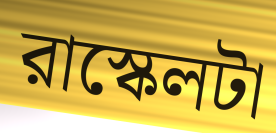
রাস্কেলটা